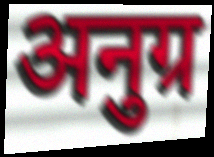
अनुग्र